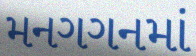
મનગગનમાં